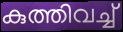
കുത്തിവച്ച്